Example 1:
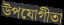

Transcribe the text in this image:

উপযোগীতা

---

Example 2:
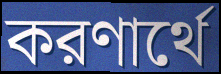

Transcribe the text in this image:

করণার্থে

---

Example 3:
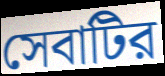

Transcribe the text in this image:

সেবাটির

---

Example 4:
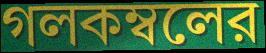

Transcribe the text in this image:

গলকম্বলের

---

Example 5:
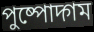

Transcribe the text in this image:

পুষ্পোদ্গম